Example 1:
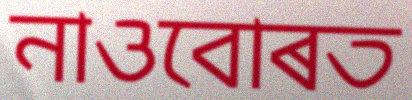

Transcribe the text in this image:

নাওবোৰত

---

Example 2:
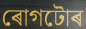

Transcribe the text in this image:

ৰোগটোৰ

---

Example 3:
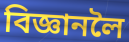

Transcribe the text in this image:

বিজ্ঞানলৈ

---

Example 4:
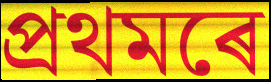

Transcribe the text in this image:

প্ৰথমৰে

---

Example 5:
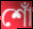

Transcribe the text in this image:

শোঁ